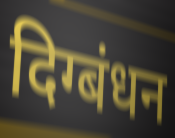
दिग्बंधन